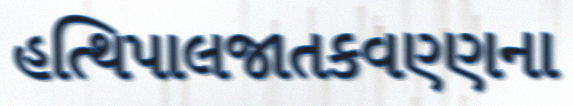
હત્થિપાલજાતકવણ્ણના